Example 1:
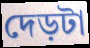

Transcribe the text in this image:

দেড়টা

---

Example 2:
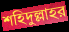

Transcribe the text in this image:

শহিদুল্লাহর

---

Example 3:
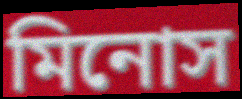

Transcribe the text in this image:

মিনোস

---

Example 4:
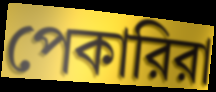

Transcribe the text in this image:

পেকারিরা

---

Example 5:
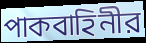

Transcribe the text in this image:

পাকবাহিনীর